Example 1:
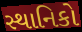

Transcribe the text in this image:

સ્થાનિકો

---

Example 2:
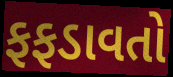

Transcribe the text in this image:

ફફડાવતો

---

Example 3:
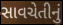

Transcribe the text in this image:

સાવચેતીનું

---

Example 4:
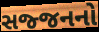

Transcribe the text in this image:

સજ્જનનો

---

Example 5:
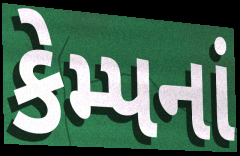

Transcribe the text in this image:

કેમ્પનાં